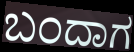
ಬಂದಾಗ